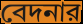
বেদনার